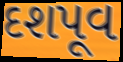
દશપૂવ